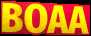
BOAA